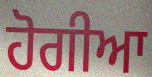
ਹੋਗੀਆ